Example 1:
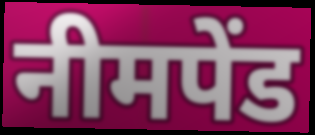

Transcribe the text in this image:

नीमपेंड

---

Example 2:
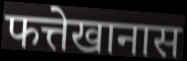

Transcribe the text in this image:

फत्तेखानास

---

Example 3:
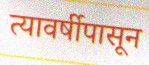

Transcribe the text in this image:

त्यावर्षीपासून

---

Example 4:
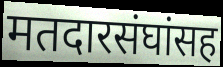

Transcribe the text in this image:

मतदारसंघांसह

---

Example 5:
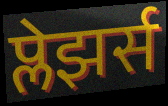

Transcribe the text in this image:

प्लेझर्स